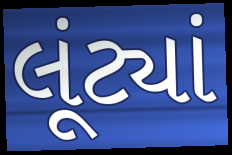
લૂંટ્યાં